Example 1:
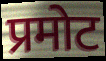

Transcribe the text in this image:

प्रमोट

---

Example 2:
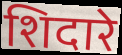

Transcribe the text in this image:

शिदारे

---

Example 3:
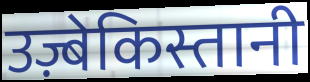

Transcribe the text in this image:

उज़्बेकिस्तानी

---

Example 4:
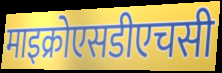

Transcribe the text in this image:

माइक्रोएसडीएचसी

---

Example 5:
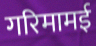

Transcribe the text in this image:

गरिमामई